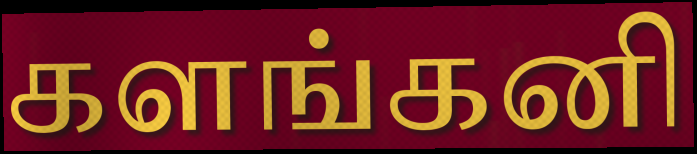
களங்கனி